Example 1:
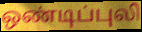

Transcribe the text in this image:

ஒண்டிப்புலி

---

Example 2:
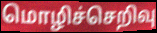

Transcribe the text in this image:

மொழிச்செறிவு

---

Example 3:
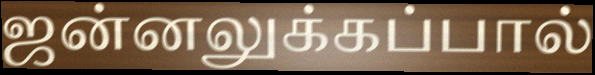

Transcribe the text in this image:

ஜன்னலுக்கப்பால்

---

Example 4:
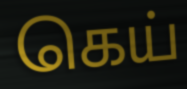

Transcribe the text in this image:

கெய்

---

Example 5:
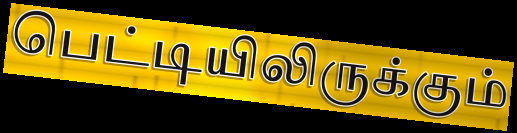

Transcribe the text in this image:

பெட்டியிலிருக்கும்